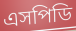
এসপিডি